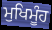
ਮੁਖਿਮੂੰਹ